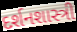
દર્શનશાસ્ત્રી